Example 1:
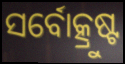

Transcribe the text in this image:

ସର୍ବୋତ୍କ୍ରୁଷ୍ଟ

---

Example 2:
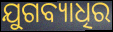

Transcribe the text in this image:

ଯୁଗବ୍ୟାଧିର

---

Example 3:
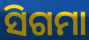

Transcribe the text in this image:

ସିଗମା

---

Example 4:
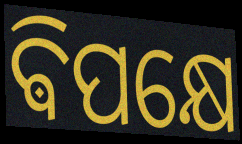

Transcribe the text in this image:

ଵିପକ୍ଷେ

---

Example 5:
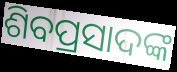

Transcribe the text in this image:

ଶିବପ୍ରସାଦଙ୍କ